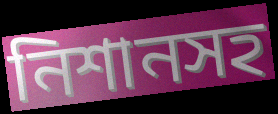
নিশানসহ